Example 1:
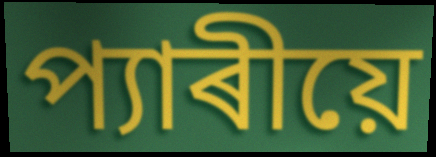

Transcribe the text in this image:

প্যাৰীয়ে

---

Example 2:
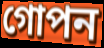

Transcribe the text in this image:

গোপন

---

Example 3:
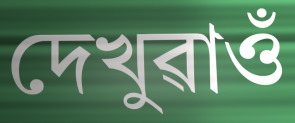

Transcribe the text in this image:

দেখুৱাওঁ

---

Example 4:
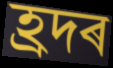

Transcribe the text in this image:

হ্ৰদৰ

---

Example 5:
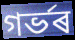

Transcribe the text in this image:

গৰ্ভৰ